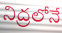
నిద్రలోనే